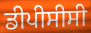
ਡੀਪੀਸੀਸੀ